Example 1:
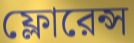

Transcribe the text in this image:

ফ্লোরেন্স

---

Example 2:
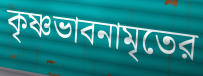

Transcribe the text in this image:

কৃষ্ণভাবনামৃতের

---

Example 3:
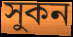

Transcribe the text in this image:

সুকন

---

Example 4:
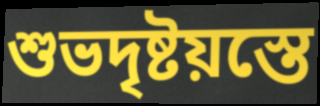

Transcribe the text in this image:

শুভদৃষ্টয়স্তে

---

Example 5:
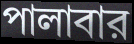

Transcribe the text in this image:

পালাবার